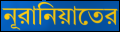
নূরানিয়াতের